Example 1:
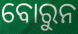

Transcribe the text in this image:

ବୋରୁନ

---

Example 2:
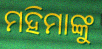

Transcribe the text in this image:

ମହିମାଙ୍କୁ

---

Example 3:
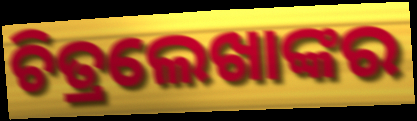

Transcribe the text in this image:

ଚିତ୍ରଲେଖାଙ୍କର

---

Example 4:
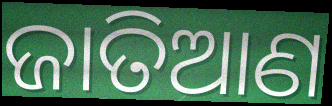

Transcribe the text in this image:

ଜାତିଆଣ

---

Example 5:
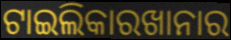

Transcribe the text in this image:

ଟାଇଲିକାରଖାନାର